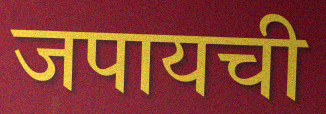
जपायची